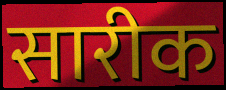
सारीक